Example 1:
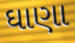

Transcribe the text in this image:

ઘાણા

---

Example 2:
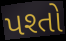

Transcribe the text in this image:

પશ્તો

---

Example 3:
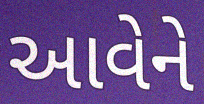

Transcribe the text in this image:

આવેને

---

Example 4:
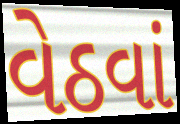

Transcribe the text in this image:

વેઠવાં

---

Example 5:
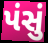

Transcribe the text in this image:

પંસું